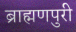
ब्राह्मणपुरी